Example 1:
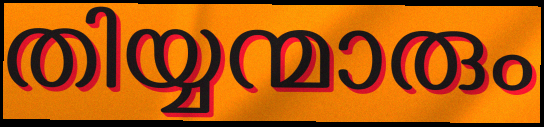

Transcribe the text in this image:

തിയ്യന്മാരും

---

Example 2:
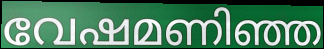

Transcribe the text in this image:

വേഷമണിഞ്ഞ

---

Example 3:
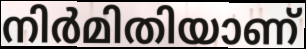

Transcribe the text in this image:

നിർമിതിയാണ്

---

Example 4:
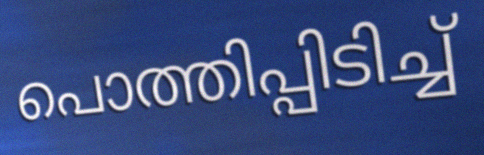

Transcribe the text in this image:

പൊത്തിപ്പിടിച്ച്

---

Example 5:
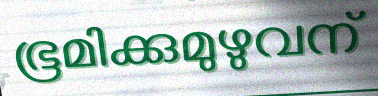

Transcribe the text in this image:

ഭൂമിക്കുമുഴുവന്